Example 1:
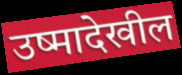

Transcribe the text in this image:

उष्मादेखील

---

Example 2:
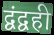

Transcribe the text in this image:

द्वंद्वही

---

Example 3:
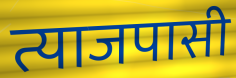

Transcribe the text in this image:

त्याजपासी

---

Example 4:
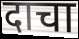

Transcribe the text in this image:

दाचा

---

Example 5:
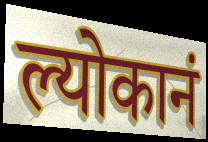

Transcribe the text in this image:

ल्योकानं